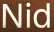
Nid